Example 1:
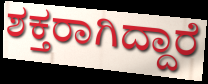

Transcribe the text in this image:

ಶಕ್ತರಾಗಿದ್ದಾರೆ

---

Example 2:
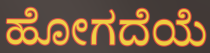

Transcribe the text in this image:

ಹೋಗದೆಯೆ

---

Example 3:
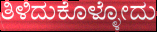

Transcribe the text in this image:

ತಿಳಿದುಕೊಳ್ಳೋದು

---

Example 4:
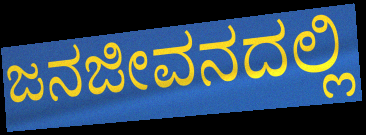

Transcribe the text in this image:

ಜನಜೀವನದಲ್ಲಿ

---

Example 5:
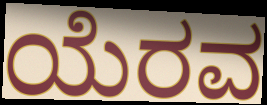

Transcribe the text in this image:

ಯೆರವ